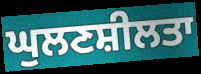
ਘੁਲਣਸ਼ੀਲਤਾ